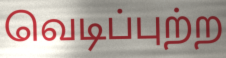
வெடிப்புற்ற